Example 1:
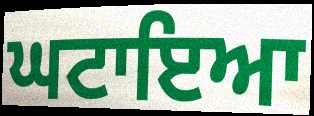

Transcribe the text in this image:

ਘਟਾਇਆ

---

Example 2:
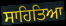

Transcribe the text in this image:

ਸਾਹਿਤਿਆ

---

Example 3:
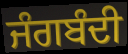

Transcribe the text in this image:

ਜੰਗਬੰਦੀ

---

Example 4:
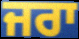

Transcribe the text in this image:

ਜਰਾ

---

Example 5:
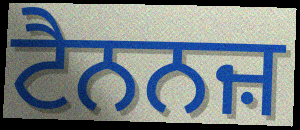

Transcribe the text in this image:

ਟੈਨਨਜ਼